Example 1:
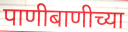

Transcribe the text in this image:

पाणीबाणीच्या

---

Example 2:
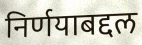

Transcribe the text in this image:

निर्णयाबद्दल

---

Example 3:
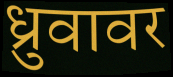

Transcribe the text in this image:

ध्रुवावर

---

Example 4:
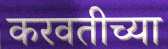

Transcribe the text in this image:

करवतीच्या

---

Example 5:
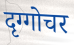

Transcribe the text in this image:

दृग्गोचर